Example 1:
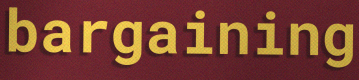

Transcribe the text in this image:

bargaining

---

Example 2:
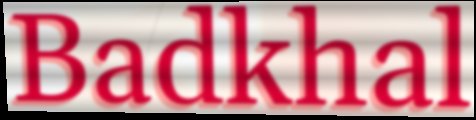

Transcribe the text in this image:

Badkhal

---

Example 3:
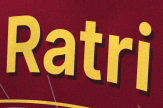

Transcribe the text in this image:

Ratri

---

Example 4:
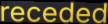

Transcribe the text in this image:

receded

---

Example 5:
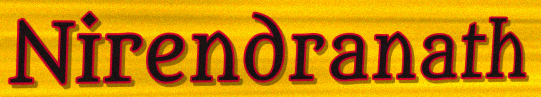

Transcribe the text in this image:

Nirendranath